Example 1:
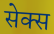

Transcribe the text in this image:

सेक्स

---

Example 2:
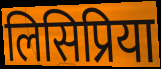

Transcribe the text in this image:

लिसिप्रिया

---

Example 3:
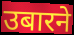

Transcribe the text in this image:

उबारने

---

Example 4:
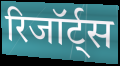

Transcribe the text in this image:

रिजॉर्ट्स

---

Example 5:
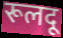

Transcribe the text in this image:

रूलदू